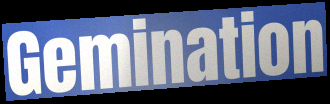
Gemination